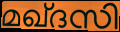
മഖ്ദസി